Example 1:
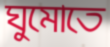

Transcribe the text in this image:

ঘুমোতে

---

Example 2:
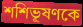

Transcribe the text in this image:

শশিভূষণকে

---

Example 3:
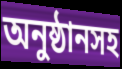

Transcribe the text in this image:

অনুষ্ঠানসহ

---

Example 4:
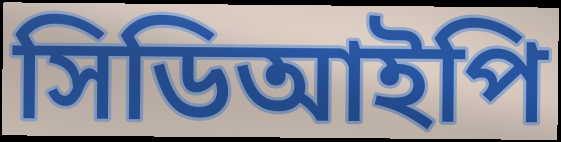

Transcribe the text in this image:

সিডিআইপি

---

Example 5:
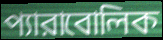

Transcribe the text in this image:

প্যারাবোলিক